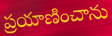
ప్రయాణించాను